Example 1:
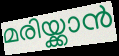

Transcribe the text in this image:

മരിയ്ക്കാൻ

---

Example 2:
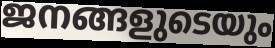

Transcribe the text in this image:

ജനങ്ങളുടെയും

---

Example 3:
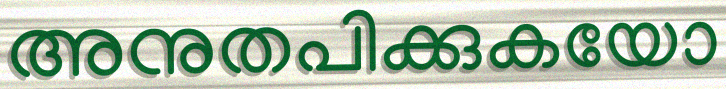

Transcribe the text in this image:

അനുതപിക്കുകയോ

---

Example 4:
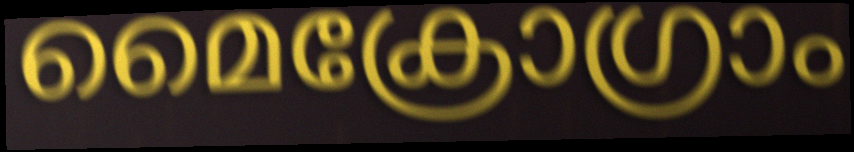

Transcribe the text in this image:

മൈക്രോഗ്രാം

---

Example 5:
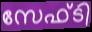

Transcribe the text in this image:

സേഫ്ടി